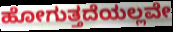
ಹೋಗುತ್ತದೆಯಲ್ಲವೇ